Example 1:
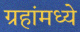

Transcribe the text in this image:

ग्रहांमध्ये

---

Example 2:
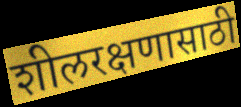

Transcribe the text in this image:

शीलरक्षणासाठी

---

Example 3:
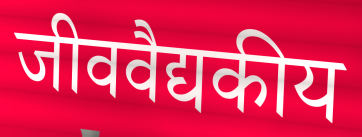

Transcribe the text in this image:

जीववैद्यकीय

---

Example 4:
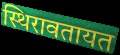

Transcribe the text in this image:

स्थिरावतायत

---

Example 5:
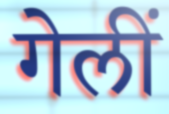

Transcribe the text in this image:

गेलीं